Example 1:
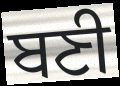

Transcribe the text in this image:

ਬਣੀ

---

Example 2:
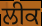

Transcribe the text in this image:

ਲੀਕ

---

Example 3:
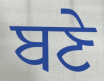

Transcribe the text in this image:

ਬਣੇ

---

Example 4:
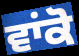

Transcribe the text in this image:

ਵਾਂਕੋ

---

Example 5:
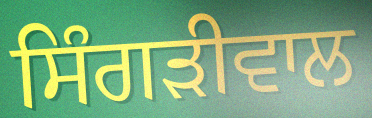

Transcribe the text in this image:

ਸਿੰਗੜੀਵਾਲ